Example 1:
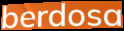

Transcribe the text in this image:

berdosa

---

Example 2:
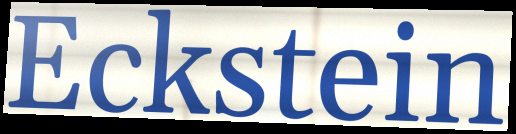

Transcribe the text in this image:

Eckstein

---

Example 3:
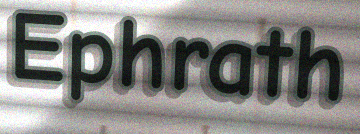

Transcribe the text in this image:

Ephrath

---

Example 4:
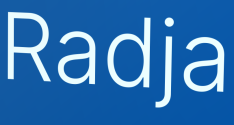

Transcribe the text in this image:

Radja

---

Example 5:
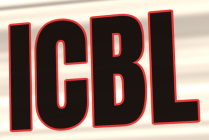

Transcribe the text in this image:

ICBL